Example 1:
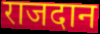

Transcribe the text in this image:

राजदान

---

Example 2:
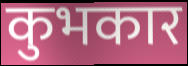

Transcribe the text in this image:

कुभकार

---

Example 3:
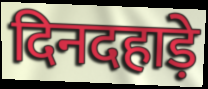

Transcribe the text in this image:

दिनदहाड़े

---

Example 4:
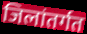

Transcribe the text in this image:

जिलांतर्गत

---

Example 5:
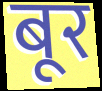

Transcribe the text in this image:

बूर